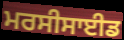
ਮਰਸੀਸਾਈਡ